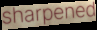
sharpened